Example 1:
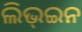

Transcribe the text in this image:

ଲିଭ୍ଇନ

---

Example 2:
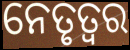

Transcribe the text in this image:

ନେତୃତ୍ଵର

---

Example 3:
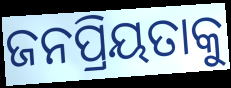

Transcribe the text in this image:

ଜନପ୍ରିୟତାକୁ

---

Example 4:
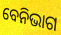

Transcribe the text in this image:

ବେନିଭାଗ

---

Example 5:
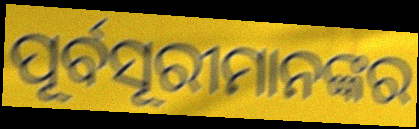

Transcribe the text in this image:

ପୂର୍ବସୂରୀମାନଙ୍କର